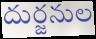
దుర్జనుల